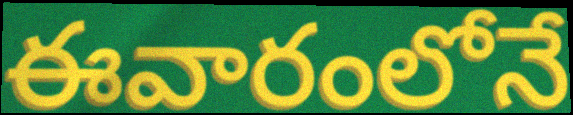
ఈవారంలోనే